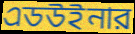
এডউইনার